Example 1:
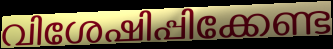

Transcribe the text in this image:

വിശേഷിപ്പിക്കേണ്ട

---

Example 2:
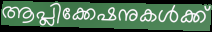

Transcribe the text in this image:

ആപ്ലിക്കേഷനുകൾക്ക്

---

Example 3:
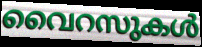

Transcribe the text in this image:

വൈറസുകൾ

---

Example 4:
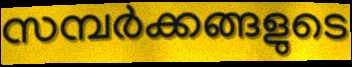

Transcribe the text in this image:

സമ്പർക്കങ്ങളുടെ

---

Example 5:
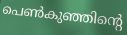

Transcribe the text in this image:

പെൺകുഞ്ഞിന്റെ